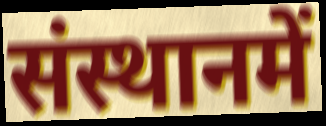
संस्थानमें